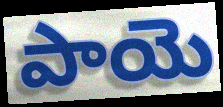
పాయె